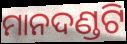
ମାନଦଣ୍ଡଟି